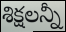
శిక్షలన్నీ